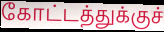
கோட்டத்துக்குச்